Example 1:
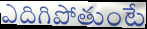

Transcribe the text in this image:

ఎదిగిపోతుంటే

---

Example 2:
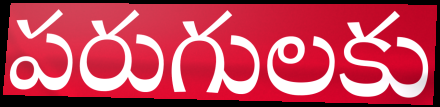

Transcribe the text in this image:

పరుగులకు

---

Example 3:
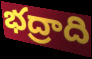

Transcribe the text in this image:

భద్రాది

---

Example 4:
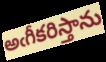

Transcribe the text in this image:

అఁగీకరిస్తాను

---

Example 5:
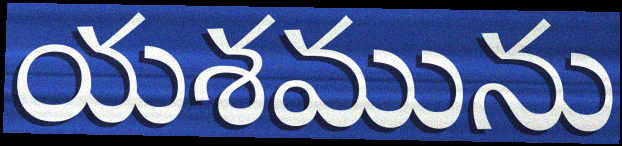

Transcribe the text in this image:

యశమును